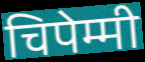
चिपेम्मी